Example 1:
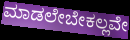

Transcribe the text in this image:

ಮಾಡಲೇಬೇಕಲ್ಲವೇ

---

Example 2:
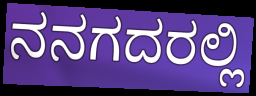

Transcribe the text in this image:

ನನಗದರಲ್ಲಿ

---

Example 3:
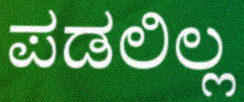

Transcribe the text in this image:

ಪಡಲಿಲ್ಲ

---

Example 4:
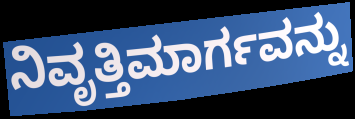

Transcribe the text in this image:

ನಿವೃತ್ತಿಮಾರ್ಗವನ್ನು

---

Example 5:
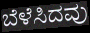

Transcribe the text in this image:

ಬೆಳೆಸಿದವು